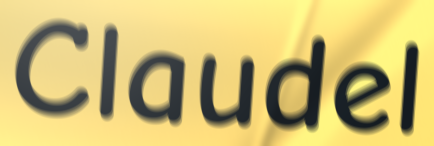
Claudel